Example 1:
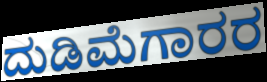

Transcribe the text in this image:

ದುಡಿಮೆಗಾರರ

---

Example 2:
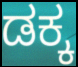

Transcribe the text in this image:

ಡಕ್ಕ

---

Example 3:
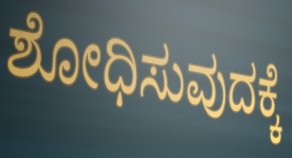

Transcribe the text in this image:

ಶೋಧಿಸುವುದಕ್ಕೆ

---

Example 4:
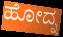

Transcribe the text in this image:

ಹೋದ್ನ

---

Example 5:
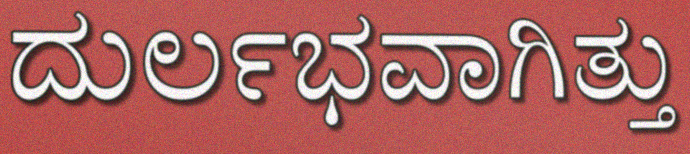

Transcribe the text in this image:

ದುರ್ಲಭವಾಗಿತ್ತು